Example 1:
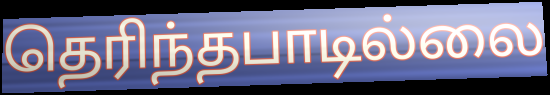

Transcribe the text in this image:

தெரிந்தபாடில்லை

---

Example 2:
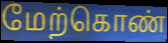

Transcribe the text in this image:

மேற்கொண்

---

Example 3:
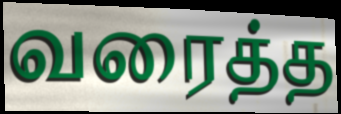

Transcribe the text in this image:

வரைத்த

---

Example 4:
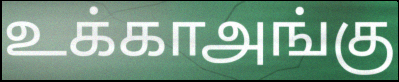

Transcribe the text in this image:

உக்காஅங்கு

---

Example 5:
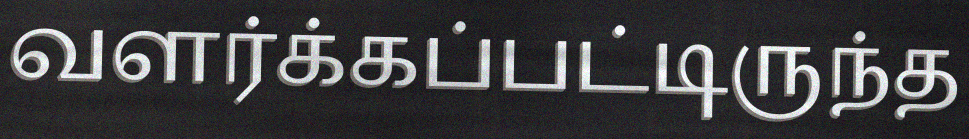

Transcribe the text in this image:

வளர்க்கப்பட்டிருந்த